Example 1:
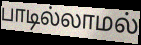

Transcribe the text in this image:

பாடில்லாமல்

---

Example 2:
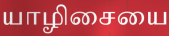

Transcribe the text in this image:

யாழிசையை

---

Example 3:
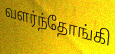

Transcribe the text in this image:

வளர்ந்தோங்கி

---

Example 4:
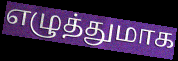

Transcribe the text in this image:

எழுத்துமாக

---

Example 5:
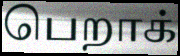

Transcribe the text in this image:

பெறாக்